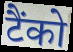
टैंको